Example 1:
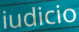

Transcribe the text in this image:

iudicio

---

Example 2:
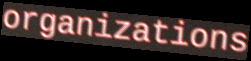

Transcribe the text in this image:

organizations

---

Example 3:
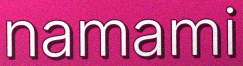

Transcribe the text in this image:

namami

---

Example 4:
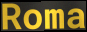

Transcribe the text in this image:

Roma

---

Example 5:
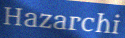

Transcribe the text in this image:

Hazarchi